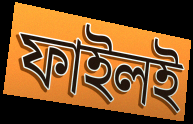
ফাইলই